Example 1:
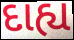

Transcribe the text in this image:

દાહ્ય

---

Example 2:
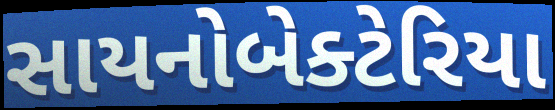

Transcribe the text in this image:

સાયનોબેક્ટેરિયા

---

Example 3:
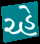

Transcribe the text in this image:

ચ્હે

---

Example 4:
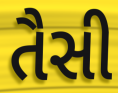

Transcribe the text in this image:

તૈસી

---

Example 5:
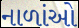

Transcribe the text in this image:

નાળાંઓ